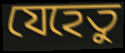
যেহেতু